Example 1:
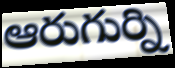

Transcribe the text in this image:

ఆరుగుర్ని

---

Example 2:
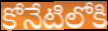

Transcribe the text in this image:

కోనేటిలోకి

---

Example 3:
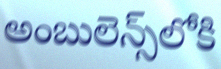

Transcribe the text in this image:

అంబులెన్స్‌లోకి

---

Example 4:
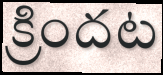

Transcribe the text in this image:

క్రిందట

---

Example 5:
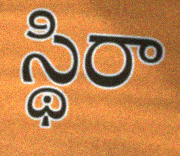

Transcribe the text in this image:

స్థిరా